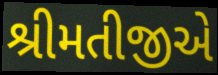
શ્રીમતીજીએ